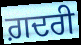
ਗ਼ਦਰੀ